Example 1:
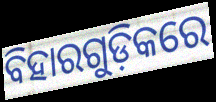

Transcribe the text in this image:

ବିହାରଗୁଡ଼ିକରେ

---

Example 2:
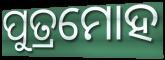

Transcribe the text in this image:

ପୁତ୍ରମୋହ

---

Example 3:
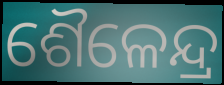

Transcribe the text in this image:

ଶୈଳେନ୍ଦ୍ର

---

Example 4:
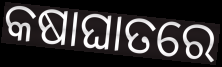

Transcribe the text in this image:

କଷାଘାତରେ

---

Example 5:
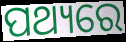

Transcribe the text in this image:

ପଥ୍ୟରେ